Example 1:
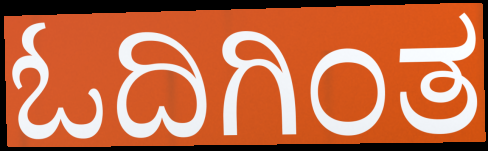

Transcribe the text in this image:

ಓದಿಗಿಂತ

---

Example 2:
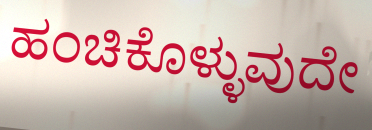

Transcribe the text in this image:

ಹಂಚಿಕೊಳ್ಳುವುದೇ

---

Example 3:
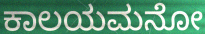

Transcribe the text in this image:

ಕಾಲಯಮನೋ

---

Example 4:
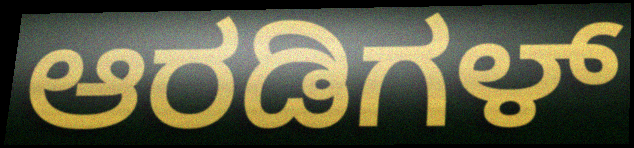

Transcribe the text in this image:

ಆರಡಿಗಳ್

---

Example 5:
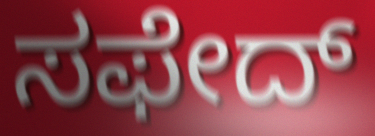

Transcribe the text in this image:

ಸಫೇದ್